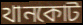
থানকোট